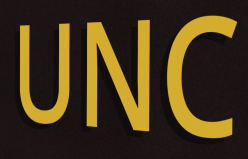
UNC